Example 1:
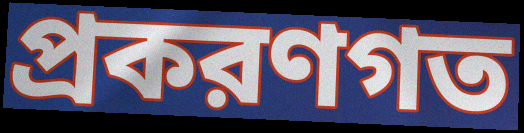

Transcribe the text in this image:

প্রকরণগত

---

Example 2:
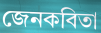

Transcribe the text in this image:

জেনকবিতা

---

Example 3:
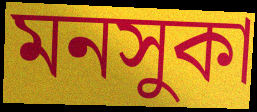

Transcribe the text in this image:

মনসুকা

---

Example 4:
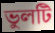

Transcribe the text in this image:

ভুলটি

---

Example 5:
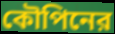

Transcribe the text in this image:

কৌপিনের